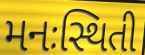
મનઃસ્થિતી